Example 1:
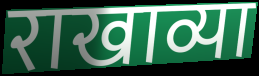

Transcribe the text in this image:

राखाव्या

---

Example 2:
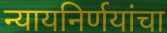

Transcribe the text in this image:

न्यायनिर्णयांचा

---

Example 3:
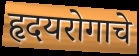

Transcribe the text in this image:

हृदयरोगाचे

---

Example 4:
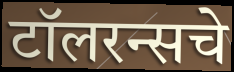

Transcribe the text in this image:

टॉलरन्सचे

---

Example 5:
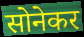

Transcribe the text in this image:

सोनेकर